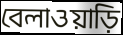
বেলাওয়াড়ি